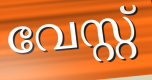
വേസ്റ്റ്